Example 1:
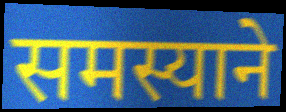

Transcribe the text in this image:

समस्याने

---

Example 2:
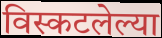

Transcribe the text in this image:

विस्कटलेल्या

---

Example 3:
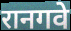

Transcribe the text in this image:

रानगवे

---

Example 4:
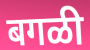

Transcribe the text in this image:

बगळी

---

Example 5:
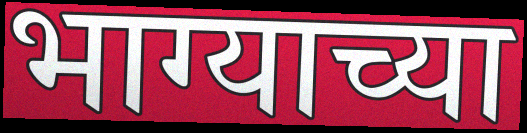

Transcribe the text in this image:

भाग्याच्या